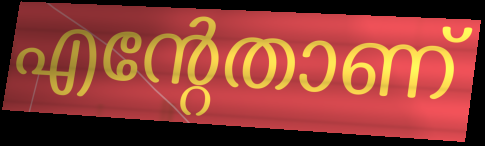
എന്റേതാണ്